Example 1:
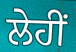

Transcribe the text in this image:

ਲੇਹੀਂ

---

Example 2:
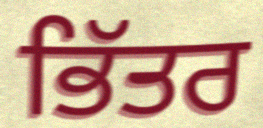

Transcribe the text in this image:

ਭਿੱਤਰ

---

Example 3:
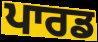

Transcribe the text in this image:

ਪਾਰਡ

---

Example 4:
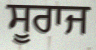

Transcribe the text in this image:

ਸੂਰਾਜ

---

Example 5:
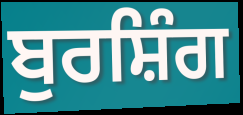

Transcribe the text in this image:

ਬੁਰਸ਼ਿੰਗ